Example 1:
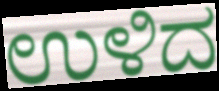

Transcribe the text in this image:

ಉಳಿದ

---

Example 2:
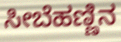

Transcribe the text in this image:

ಸೀಬೆಹಣ್ಣಿನ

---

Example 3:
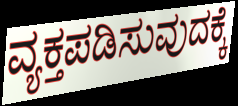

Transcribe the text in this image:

ವ್ಯಕ್ತಪಡಿಸುವುದಕ್ಕೆ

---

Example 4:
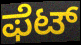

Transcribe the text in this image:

ಫೆಟ್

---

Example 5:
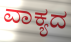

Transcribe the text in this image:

ವಾಕ್ಯದ